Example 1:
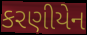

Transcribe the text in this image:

કરણીયેન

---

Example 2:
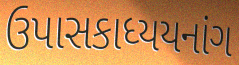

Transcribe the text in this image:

ઉપાસકાધ્યયનાંગ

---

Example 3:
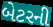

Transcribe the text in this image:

બેટરની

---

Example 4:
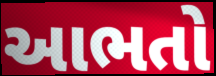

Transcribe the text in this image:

આભતો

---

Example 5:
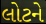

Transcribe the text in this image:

લોટને